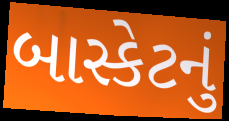
બાસ્કેટનું